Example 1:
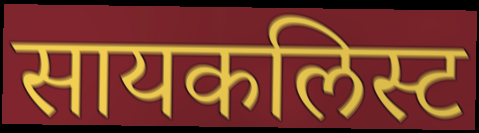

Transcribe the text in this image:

सायकलिस्ट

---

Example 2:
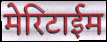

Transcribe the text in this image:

मेरिटाईम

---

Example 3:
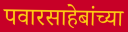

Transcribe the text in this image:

पवारसाहेबांच्या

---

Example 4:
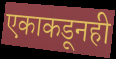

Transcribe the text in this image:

एकाकडूनही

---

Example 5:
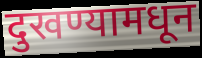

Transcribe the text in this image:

दुखण्यामधून